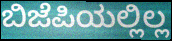
ಬಿಜೆಪಿಯಲ್ಲಿಲ್ಲ